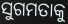
ସୁଗମତାକୁ